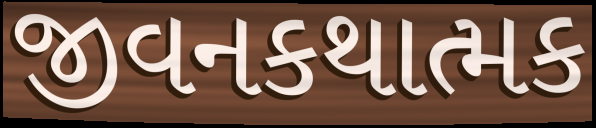
જીવનકથાત્મક